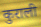
कुराली